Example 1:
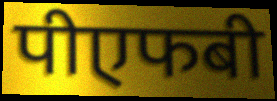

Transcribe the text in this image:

पीएफबी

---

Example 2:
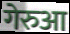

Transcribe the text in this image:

गेरुआ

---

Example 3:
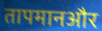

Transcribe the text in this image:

तापमानऔर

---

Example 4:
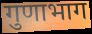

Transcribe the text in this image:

गुणाभाग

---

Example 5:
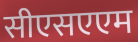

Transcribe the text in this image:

सीएसएएम